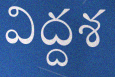
విద్దశ